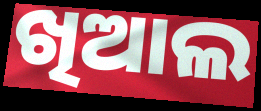
ଖିଆଲ